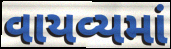
વાયવ્યમાં